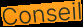
Conseil